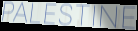
PALESTINE